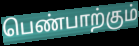
பெண்பாற்கும்